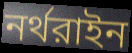
নর্থরাইন